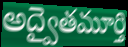
అద్వైతమూర్తి